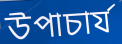
উপাচাৰ্য